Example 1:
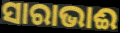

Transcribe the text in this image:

ସାରାଭାଈ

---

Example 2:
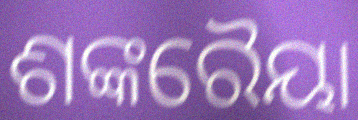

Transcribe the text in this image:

ଶଙ୍କରୈୟା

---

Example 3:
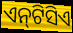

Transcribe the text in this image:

ଏନ୍‌ଟିସିଏ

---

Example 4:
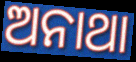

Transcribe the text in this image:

ଅନାଥା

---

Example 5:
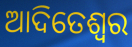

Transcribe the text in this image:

ଆଦିତେଶ୍ଵର